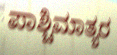
ಪಾಶ್ಚಿಮಾತ್ಯರ